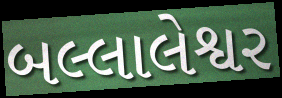
બલ્લાલેશ્વર